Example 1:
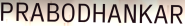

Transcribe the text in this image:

PRABODHANKAR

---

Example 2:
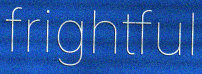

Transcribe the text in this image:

frightful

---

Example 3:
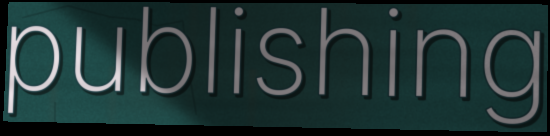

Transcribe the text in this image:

publishing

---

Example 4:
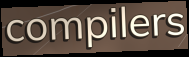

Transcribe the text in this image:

compilers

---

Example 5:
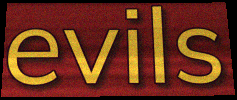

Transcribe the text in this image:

evils